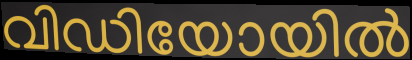
വിഡിയോയിൽ